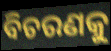
ବିଚରଣକୁ